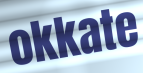
okkate